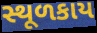
સ્થૂળકાય